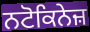
ਨਟੋਕਿਨੇਜ਼